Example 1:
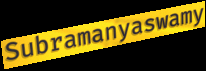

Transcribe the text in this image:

Subramanyaswamy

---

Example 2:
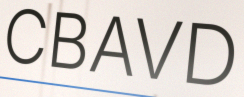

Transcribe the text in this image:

CBAVD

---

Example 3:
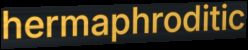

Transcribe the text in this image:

hermaphroditic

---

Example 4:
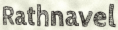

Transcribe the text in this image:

Rathnavel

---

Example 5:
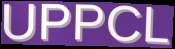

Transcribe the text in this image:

UPPCL